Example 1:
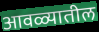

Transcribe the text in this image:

आवळ्यातील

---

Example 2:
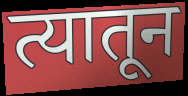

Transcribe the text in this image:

त्यातून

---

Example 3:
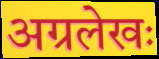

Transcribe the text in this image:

अग्रलेखः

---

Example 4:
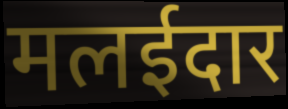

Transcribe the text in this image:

मलईदार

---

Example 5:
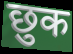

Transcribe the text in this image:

छुक